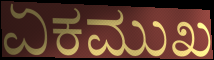
ಏಕಮುಖ